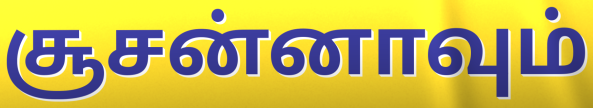
சூசன்னாவும்